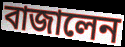
বাজালেন